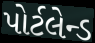
પોર્ટલેન્ડ